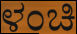
ಳಂಚಿ